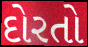
દોરતો